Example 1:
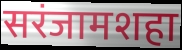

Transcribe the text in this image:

सरंजामशहा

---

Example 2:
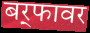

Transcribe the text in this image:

बर्फावर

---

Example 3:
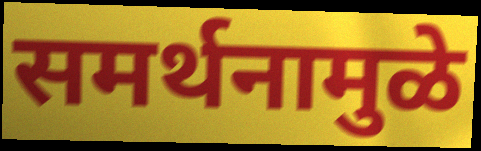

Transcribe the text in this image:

समर्थनामुळे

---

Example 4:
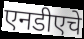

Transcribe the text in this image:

एनडीएचे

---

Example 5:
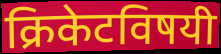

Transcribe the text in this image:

क्रिकेटविषयी